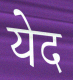
येद